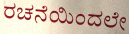
ರಚನೆಯಿಂದಲೇ